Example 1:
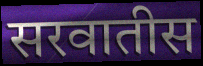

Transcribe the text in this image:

सरवातीस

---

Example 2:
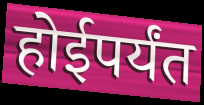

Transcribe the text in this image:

होईपर्यंत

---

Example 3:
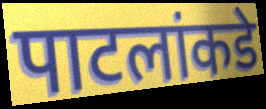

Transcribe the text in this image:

पाटलांकडे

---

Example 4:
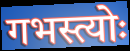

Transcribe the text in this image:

गभस्त्योः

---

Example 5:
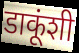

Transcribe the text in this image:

डाकूंशी